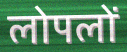
लोपलों